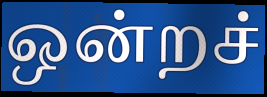
ஒன்றச்